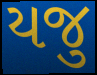
યજુ